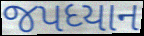
જપધ્યાન